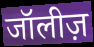
जॉलीज़